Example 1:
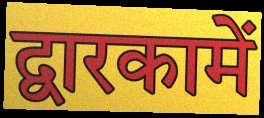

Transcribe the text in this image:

द्वारकामें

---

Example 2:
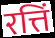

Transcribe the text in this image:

रत्तिं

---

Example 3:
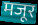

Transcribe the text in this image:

मजूर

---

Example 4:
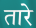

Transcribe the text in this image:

तारे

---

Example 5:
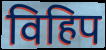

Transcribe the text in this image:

विहिप